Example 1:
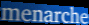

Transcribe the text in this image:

menarche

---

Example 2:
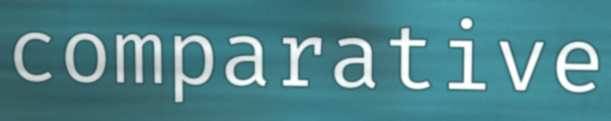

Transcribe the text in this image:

comparative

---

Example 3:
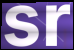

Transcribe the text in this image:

sr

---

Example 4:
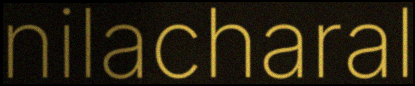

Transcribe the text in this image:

nilacharal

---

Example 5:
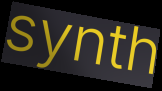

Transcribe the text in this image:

synth